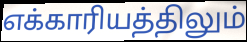
எக்காரியத்திலும்